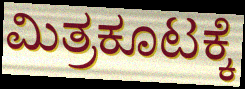
ಮಿತ್ರಕೂಟಕ್ಕೆ